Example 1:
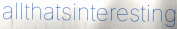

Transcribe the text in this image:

allthatsinteresting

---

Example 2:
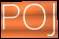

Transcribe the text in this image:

POJ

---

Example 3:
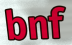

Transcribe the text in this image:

bnf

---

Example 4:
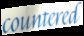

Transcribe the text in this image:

countered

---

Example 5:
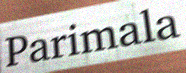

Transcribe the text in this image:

Parimala